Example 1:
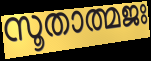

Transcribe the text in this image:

സൂതാത്മജഃ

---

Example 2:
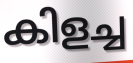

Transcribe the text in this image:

കിളച്ച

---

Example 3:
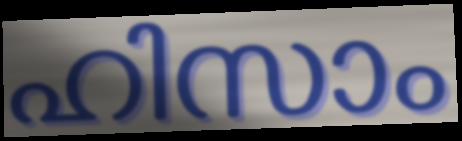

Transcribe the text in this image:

ഹിസാം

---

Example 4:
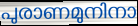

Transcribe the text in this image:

പുരാണമുനിനാ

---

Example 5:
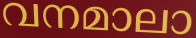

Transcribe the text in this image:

വനമാലാ